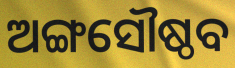
ଅଙ୍ଗସୌଷ୍ଠବ